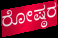
ರೋಷ್ಠರ